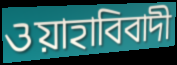
ওয়াহাবিবাদী